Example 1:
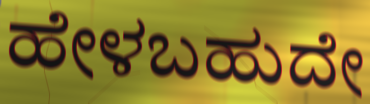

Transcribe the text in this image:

ಹೇಳಬಹುದೇ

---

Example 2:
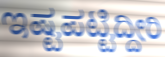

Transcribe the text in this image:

ಇಷ್ಟಪಟ್ಟಿದ್ದೀರಿ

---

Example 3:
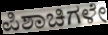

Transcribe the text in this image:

ಪಿಶಾಚಿಗಳೇ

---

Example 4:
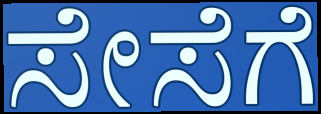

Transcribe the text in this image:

ಸೇಸೆಗೆ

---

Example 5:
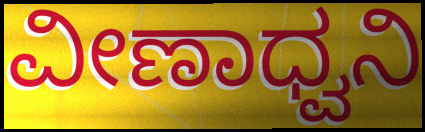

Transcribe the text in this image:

ವೀಣಾಧ್ವನಿ